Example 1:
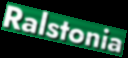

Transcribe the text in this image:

Ralstonia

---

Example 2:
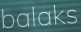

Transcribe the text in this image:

balaks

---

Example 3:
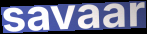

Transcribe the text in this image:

savaar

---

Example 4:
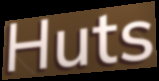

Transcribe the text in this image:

Huts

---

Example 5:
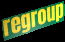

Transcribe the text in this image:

regroup